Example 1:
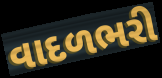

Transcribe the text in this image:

વાદળભરી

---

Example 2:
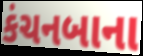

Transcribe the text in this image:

કંચનબાના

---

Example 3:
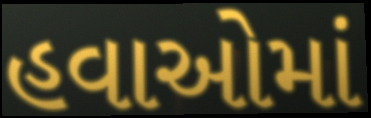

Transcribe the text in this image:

હવાઓમાં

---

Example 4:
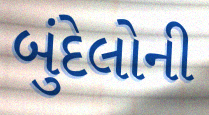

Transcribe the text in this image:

બુંદેલોની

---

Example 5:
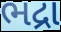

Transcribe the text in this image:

ભદ્રા